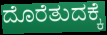
ದೊರೆತುದಕ್ಕೆ